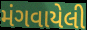
મંગવાયેલી